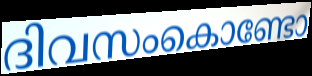
ദിവസംകൊണ്ടോ